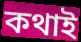
কথাই